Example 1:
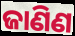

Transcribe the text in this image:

ଜାଣିଣ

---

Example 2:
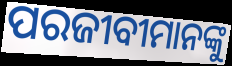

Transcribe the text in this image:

ପରଜୀବୀମାନଙ୍କୁ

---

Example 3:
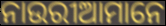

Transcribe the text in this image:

ନାଉରୀଆମାନେ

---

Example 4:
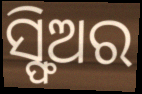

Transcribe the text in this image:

ସ୍ଫିଅର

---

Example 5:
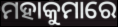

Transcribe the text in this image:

ମହାକୁମାରେ